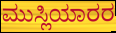
ಮುಸ್ಲಿಯಾರರ